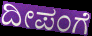
ದೀಪಂಗೆ